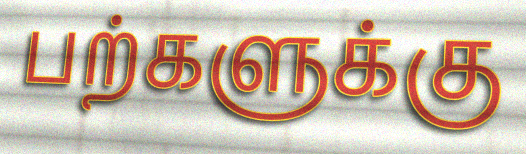
பற்களுக்கு